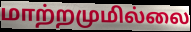
மாற்றமுமில்லை